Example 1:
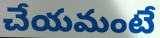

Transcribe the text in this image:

చేయమంటే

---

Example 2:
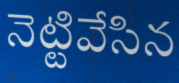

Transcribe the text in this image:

నెట్టివేసిన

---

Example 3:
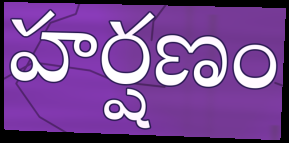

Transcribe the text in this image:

హర్షణం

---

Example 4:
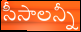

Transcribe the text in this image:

సీసాలన్నీ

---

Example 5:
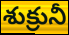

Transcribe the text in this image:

శుక్రునీ